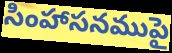
సింహాసనముపై